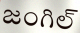
జంగిల్